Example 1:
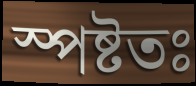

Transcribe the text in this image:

স্পষ্টতঃ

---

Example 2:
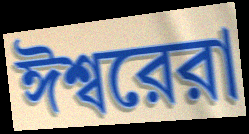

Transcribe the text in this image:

ঈশ্বরেরা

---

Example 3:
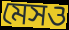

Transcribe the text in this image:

মেসও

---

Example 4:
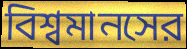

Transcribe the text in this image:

বিশ্বমানসের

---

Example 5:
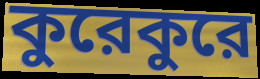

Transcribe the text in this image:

কুরেকুরে